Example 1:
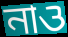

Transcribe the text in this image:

নাও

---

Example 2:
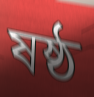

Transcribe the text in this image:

ষষ্ঠ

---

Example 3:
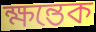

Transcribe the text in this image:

ক্ষন্তেক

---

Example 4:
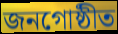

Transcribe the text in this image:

জনগোষ্ঠীত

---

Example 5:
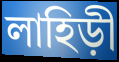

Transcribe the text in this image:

লাহিড়ী